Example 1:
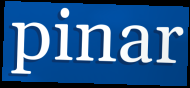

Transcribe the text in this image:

pinar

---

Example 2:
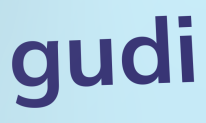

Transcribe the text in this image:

gudi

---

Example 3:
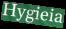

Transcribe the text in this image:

Hygieia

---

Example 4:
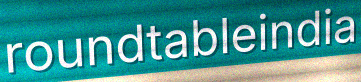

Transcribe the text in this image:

roundtableindia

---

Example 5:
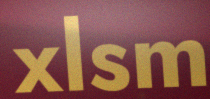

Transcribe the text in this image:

xlsm